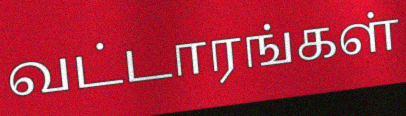
வட்டாரங்கள்